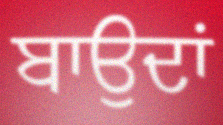
ਬਾਉਦਾਂ